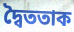
দ্বৈততাক